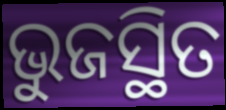
ଭୁଜସ୍ଥିତ